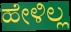
ಹೇಳಿಲ್ಲ